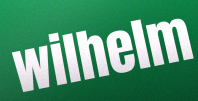
wilhelm